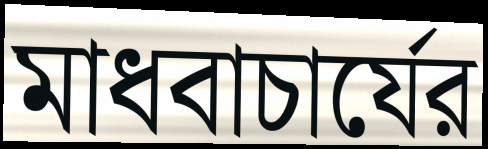
মাধবাচার্যের